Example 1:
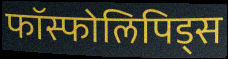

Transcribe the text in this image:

फॉस्फोलिपिड्स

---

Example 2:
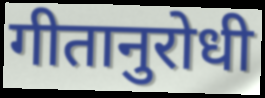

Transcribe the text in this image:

गीतानुरोधी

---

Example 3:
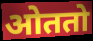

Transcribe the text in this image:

ओततो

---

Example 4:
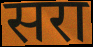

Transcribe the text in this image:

सरा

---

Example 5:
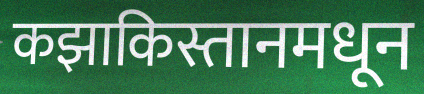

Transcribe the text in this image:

कझाकिस्तानमधून